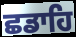
ਛਡਾਹਿ